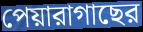
পেয়ারাগাছের